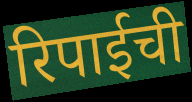
रिपाईची